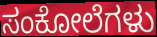
ಸಂಕೋಲೆಗಳು